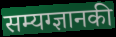
सम्यग्ज्ञानकी